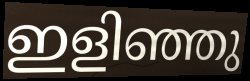
ഇളിഞ്ഞു